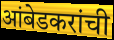
आंबेडकरांची